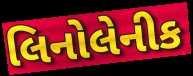
લિનોલેનીક